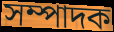
সম্পাদক